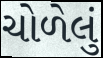
ચોળેલું